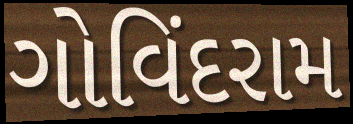
ગોવિંદરામ